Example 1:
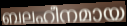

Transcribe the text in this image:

ബലഹീനമായ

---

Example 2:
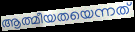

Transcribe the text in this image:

ആത്മീയതയെന്നത്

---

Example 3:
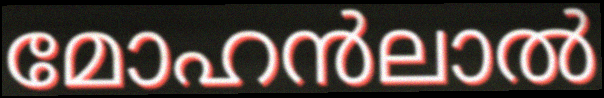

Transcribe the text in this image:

മോഹൻലാൽ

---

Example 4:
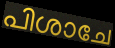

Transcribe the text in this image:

പിശാചേ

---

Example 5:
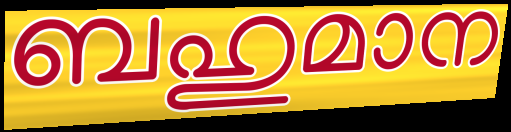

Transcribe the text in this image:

ബഹുമാന